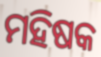
ମହିଷକ